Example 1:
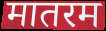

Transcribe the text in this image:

मातरम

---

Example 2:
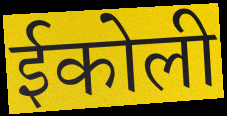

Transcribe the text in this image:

ईकोली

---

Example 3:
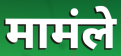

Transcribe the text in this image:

मामंले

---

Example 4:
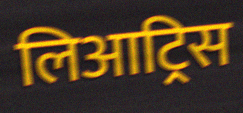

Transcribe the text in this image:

लिआट्रिस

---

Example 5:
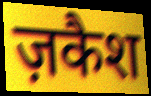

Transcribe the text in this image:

ज़कैश